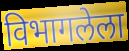
विभागलेला